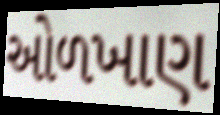
ઓળખાણ